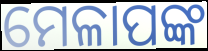
ମେଳାପଙ୍କ